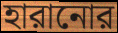
হারানোর